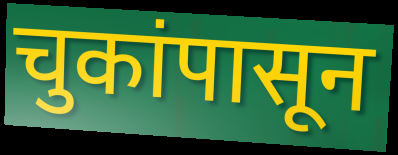
चुकांपासून